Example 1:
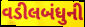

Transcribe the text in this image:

વડીલબંધુની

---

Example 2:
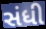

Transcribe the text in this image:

સંધી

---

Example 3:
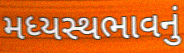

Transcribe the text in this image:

મધ્યસ્થભાવનું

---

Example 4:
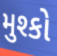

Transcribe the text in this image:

મુશ્કો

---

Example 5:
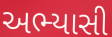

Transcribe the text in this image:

અભ્યાસી